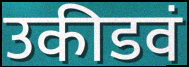
उकीडवं